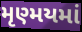
મૃણ્મયમાં